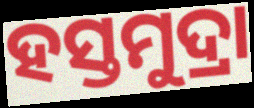
ହସ୍ତମୁଦ୍ରା